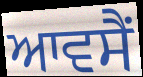
ਆਵਸੈਂ